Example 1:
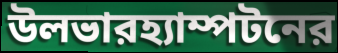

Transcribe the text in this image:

উলভারহ্যাম্পটনের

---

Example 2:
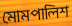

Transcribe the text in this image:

মোমপালিশ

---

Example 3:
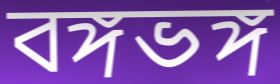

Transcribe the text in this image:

বঙ্গভঙ্গ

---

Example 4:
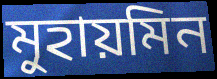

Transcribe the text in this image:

মুহায়মিন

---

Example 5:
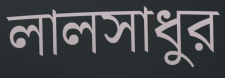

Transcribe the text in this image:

লালসাধুর